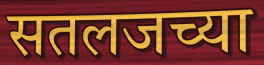
सतलजच्या